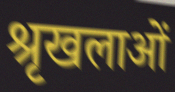
श्रृखलाओं